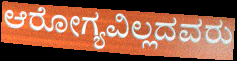
ಆರೋಗ್ಯವಿಲ್ಲದವರು